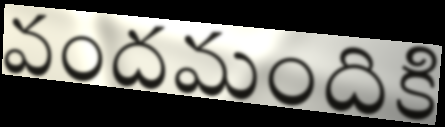
వందమందికి